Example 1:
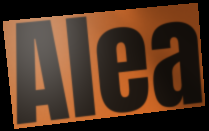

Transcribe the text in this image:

Alea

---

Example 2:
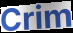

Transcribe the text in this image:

Crim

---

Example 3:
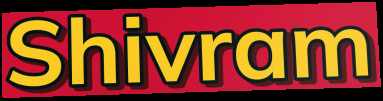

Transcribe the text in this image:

Shivram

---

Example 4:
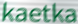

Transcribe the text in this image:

kaetka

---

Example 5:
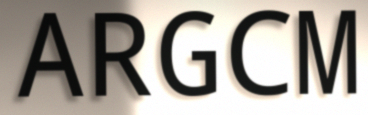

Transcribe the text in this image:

ARGCM